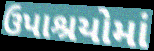
ઉપાશ્રયોમાં